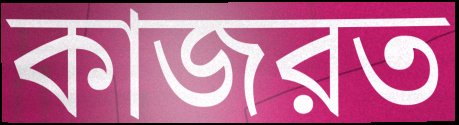
কাজরত